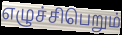
எழுச்சிபெறும்